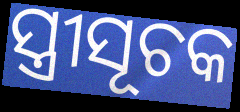
ସ୍ତ୍ରୀସୂଚକ